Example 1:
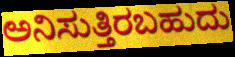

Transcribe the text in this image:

ಅನಿಸುತ್ತಿರಬಹುದು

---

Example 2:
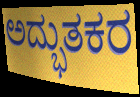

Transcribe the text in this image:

ಅದ್ಭುತಕರ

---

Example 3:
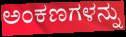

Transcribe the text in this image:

ಅಂಕಣಗಳನ್ನು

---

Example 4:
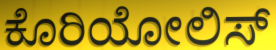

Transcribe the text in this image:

ಕೊರಿಯೋಲಿಸ್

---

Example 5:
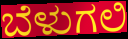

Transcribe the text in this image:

ಬೆಳುಗಲಿ